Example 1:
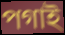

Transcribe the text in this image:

পগাই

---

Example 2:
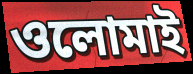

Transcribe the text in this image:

ওলোমাই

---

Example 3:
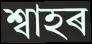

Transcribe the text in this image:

শ্বাহৰ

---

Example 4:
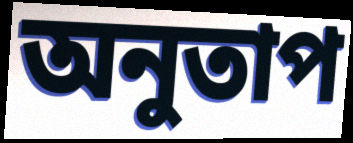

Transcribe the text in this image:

অনুতাপ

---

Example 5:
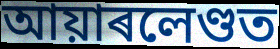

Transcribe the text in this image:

আয়াৰলেণ্ডত